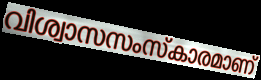
വിശ്വാസസംസ്‌കാരമാണ്